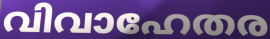
വിവാഹേതര